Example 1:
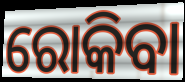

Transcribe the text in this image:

ରୋକିବା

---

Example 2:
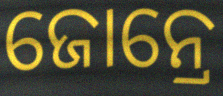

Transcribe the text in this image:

ଜୋନ୍ରେ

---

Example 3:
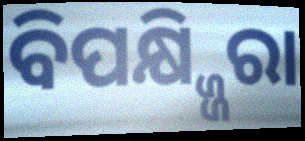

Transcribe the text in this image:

ବିପକ୍ଷ୍ଜ୍ଜିରା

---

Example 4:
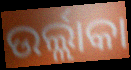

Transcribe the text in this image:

ଉର୍ଲ୍ଲାକା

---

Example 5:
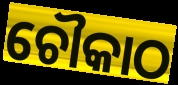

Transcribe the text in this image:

ଚୌକାଠ